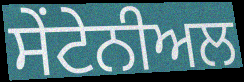
ਸੇਂਟੇਨੀਅਲ